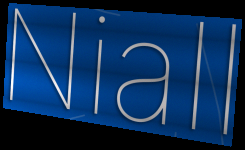
Niall